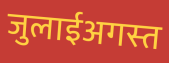
जुलाईअगस्त